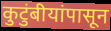
कुटुंबीयांपासून